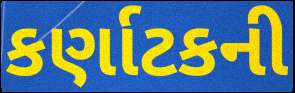
કર્ણાટકની